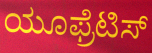
ಯೂಫ್ರೆಟಿಸ್